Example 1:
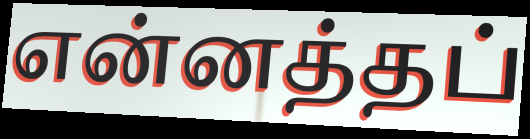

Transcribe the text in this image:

என்னத்தப்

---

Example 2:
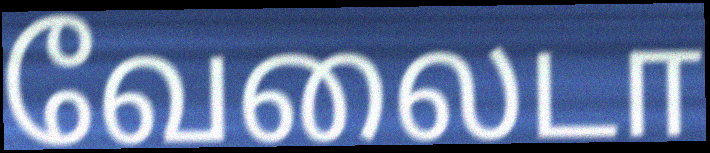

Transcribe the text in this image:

வேலைடா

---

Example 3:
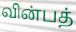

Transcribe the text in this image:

வின்பத்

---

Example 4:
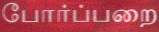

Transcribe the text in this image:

போர்ப்பறை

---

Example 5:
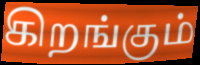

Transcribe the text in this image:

கிறங்கும்